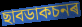
ছাবডাকচনৰ